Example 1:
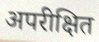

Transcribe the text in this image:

अपरीक्षित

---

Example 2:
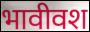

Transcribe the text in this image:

भावीवश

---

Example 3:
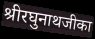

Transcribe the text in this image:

श्रीरघुनाथजीका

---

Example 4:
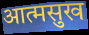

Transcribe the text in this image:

आत्मसुख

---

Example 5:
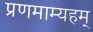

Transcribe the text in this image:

प्रणमाम्यहम्